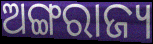
ଅଙ୍ଗରାଜ୍ୟ